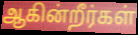
ஆகின்றீர்கள்